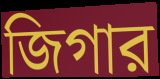
জিগার